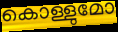
കൊള്ളുമോ